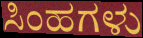
ಸಿಂಹಗಳು